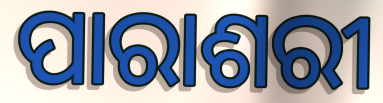
ପାରାଶରୀ